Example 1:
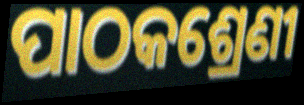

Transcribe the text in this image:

ପାଠକଶ୍ରେଣୀ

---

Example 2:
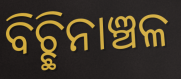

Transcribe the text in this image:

ବିଚ୍ଛିନାଞ୍ଚଳ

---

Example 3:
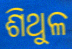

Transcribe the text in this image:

ଶିଥୁଳ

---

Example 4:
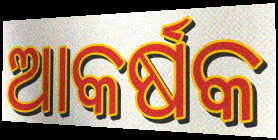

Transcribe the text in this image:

ଆକର୍ଷକ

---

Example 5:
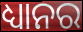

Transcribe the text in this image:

ଧ୍ୟାନର